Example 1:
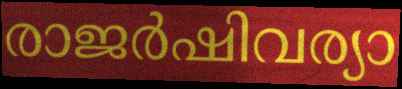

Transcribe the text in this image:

രാജർഷിവര്യാ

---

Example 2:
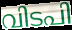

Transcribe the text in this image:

വിടപി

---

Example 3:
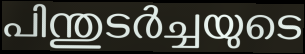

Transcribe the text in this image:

പിന്തുടർച്ചയുടെ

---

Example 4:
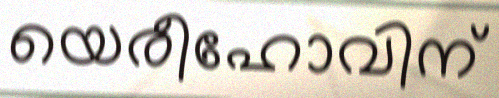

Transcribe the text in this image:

യെരീഹോവിന്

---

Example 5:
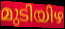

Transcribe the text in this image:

മുടിയിഴ